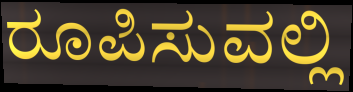
ರೂಪಿಸುವಲ್ಲಿ